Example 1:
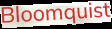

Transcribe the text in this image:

Bloomquist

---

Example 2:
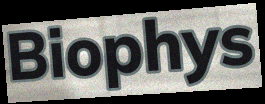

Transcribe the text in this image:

Biophys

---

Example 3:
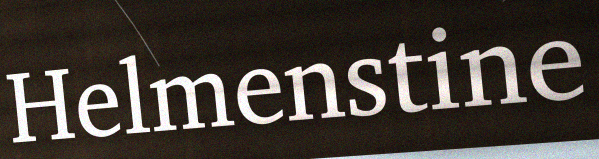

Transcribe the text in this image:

Helmenstine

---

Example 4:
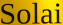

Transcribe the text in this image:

Solai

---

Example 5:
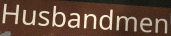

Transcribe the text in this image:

Husbandmen